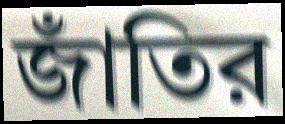
জাঁতির